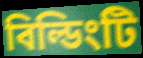
বিল্ডিংটি